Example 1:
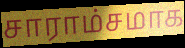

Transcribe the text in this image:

சாராம்சமாக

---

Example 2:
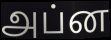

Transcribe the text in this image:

அப்ன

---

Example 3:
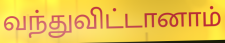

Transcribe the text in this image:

வந்துவிட்டானாம்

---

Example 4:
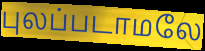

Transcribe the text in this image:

புலப்படாமலே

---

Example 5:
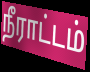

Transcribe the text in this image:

நீராட்டம்